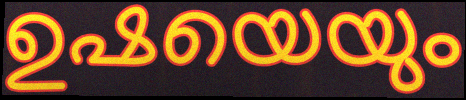
ഉഷയെയും